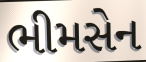
ભીમસેન